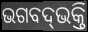
ଭଗବଦ୍‌ଭକ୍ତି